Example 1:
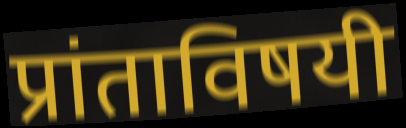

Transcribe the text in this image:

प्रांताविषयी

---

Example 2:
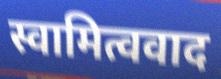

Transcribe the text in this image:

स्वामित्ववाद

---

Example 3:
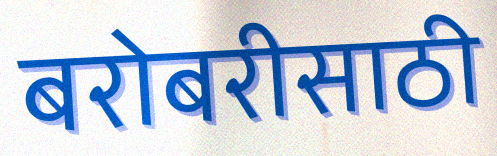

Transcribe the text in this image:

बरोबरीसाठी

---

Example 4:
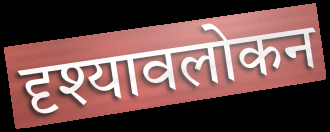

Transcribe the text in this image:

दृश्‍यावलोकन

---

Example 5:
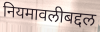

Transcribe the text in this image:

नियमावलीबद्दल